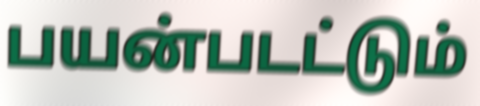
பயன்படட்டும்